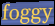
foggy